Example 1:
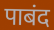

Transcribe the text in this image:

पाबंद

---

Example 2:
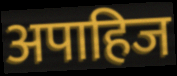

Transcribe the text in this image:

अपाहिज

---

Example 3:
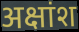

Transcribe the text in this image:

अक्षांश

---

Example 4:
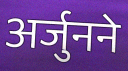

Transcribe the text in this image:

अर्जुनने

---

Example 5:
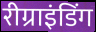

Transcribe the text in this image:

रीग्राइंडिंग